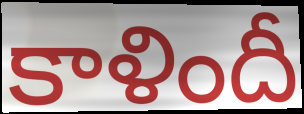
కాళిందీ